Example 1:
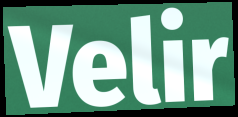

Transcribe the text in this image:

Velir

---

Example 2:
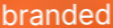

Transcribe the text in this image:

branded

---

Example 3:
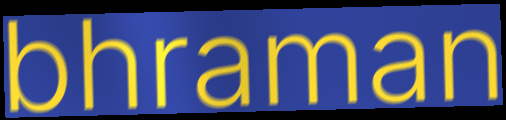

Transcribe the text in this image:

bhraman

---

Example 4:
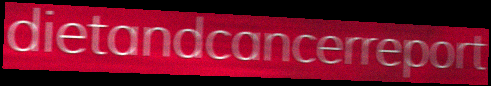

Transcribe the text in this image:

dietandcancerreport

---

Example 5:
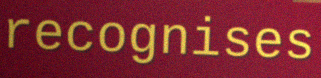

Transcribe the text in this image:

recognises